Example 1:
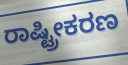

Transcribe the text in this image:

ರಾಷ್ಟ್ರೀಕರಣ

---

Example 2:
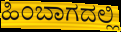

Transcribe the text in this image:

ಹಿಂಬಾಗದಲ್ಲಿ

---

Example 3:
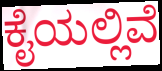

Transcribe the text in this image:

ಕೈಯಲ್ಲಿವೆ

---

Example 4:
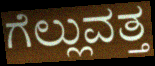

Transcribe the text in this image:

ಗೆಲ್ಲುವತ್ತ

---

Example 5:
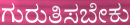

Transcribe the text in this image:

ಗುರುತಿಸಬೇಕು